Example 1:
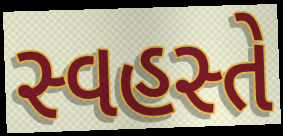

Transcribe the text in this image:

સ્વહસ્તે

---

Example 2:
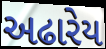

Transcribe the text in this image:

અઢારેય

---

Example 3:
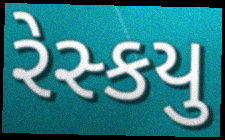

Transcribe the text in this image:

રેસ્કયુ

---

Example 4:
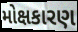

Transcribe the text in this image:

મોક્ષકારણ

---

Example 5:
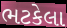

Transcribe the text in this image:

ભટકેલા